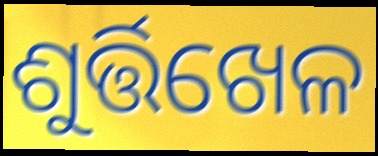
ଶୁର୍ତ୍ତିଖେଳ